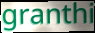
granthi